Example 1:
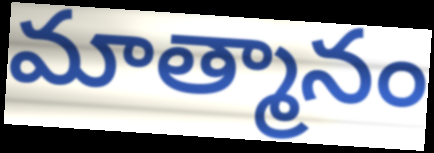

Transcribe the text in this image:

మాత్మానం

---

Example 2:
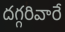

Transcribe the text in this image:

దగ్గరివారే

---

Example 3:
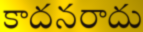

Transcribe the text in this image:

కాదనరాదు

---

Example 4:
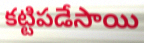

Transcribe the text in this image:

కట్టిపడేసాయి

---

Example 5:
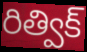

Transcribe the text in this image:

రిత్విక్